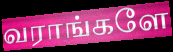
வராங்களே